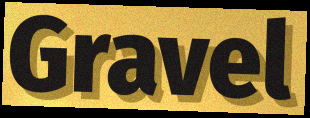
Gravel